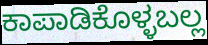
ಕಾಪಾಡಿಕೊಳ್ಳಬಲ್ಲ